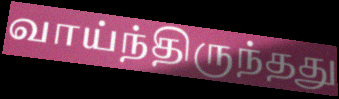
வாய்ந்திருந்தது